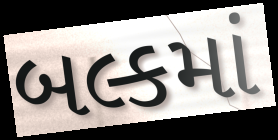
બલ્કમાં